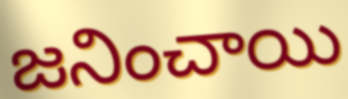
జనించాయి